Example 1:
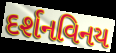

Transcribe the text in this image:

દર્શનવિનય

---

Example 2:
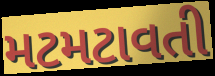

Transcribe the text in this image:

મટમટાવતી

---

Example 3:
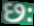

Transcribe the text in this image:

છઃ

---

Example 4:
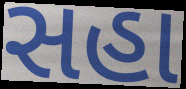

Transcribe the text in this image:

સહા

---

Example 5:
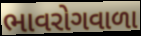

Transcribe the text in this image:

ભાવરોગવાળા